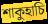
শাকুহাচি